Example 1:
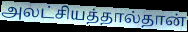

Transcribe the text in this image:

அலட்சியத்தால்தான்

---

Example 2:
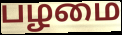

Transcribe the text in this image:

பழமை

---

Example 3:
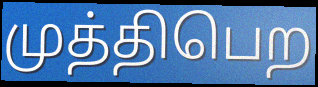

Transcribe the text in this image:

முத்திபெற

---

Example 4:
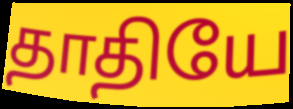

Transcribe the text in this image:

தாதியே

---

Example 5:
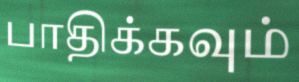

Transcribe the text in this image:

பாதிக்கவும்